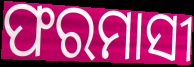
ଫରମାସୀ